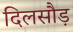
दिलसौड़